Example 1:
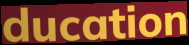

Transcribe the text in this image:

ducation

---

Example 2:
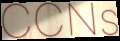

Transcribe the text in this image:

CCNs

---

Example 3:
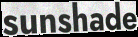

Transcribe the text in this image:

sunshade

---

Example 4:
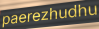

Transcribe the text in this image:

paerezhudhu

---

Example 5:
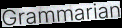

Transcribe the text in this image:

Grammarian